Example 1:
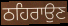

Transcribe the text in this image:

ਠਹਿਰਾਉਣ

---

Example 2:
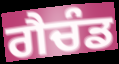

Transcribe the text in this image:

ਗੈਚੰਡ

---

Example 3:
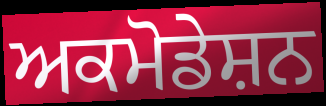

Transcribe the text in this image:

ਅਕਮੋਡੇਸ਼ਨ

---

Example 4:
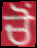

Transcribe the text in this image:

ਚੋਂ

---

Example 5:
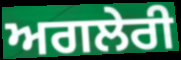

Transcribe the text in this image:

ਅਗਲੇਰੀ